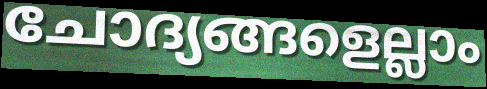
ചോദ്യങ്ങളെല്ലാം